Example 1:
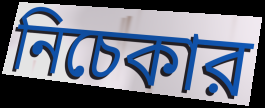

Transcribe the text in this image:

নিচেকার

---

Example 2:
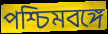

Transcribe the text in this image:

পশ্চিমবঙ্গে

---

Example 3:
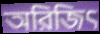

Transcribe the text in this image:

অরিজিৎ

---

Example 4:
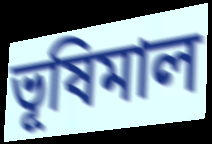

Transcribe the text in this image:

ভূষিমাল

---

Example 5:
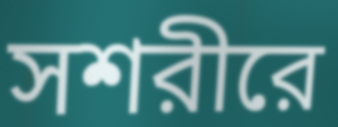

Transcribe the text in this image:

সশরীরে